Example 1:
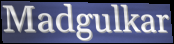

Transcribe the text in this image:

Madgulkar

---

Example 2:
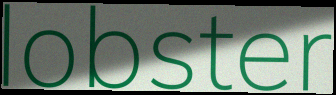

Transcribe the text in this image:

lobster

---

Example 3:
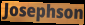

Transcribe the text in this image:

Josephson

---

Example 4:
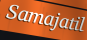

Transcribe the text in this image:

Samajatil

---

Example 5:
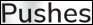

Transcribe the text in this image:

Pushes